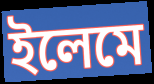
ইলেমে